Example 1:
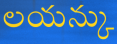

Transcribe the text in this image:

లయన్కు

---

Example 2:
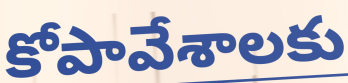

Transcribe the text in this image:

కోపావేశాలకు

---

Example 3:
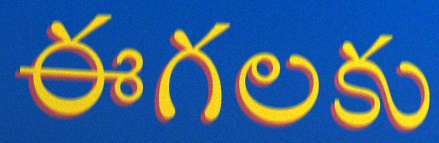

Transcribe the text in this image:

ఈగలకు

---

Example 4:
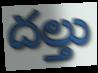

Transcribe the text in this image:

దల్తు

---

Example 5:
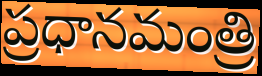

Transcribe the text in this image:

ప్రధానమంత్రి